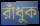
রাঁধুক